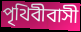
পৃথিবীবাসী